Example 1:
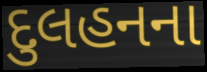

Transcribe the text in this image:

દુલહનના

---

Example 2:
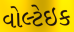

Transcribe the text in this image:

વોલ્ટેઇક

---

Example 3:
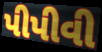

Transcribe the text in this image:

પીપીવી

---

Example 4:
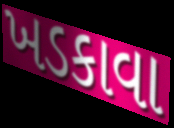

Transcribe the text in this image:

ખડકાવા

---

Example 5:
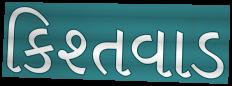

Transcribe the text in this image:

કિશ્તવાડ